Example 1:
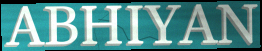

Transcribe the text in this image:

ABHIYAN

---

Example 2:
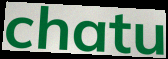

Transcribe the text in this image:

chatu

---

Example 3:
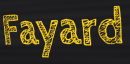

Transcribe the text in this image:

Fayard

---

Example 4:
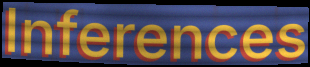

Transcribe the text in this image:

Inferences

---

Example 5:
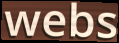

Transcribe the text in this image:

webs